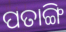
ପତାଙ୍ଗି